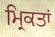
ਮ੍ਰਿਕਤਾਂ